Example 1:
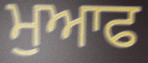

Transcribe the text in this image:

ਮੁਆਫ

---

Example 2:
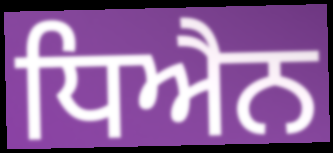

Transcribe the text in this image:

ਧਿਐਨ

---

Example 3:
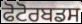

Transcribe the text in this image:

ਫੋਟੋਰਬਡਸ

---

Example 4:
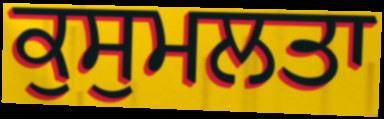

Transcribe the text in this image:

ਕੁਸੁਮਲਤਾ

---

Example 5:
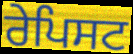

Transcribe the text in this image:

ਰੇਪਿਸਟ